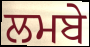
ਲਮਬੇ